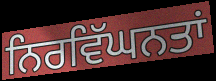
ਨਿਰਵਿੱਘਨਤਾਂ